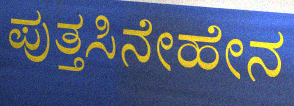
ಪುತ್ತಸಿನೇಹೇನ